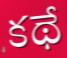
కథే